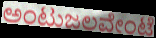
ಅಂಟುಜಲವೇಂಟೆ